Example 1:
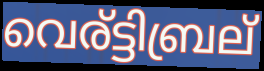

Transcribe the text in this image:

വെര്ട്ടിബ്രല്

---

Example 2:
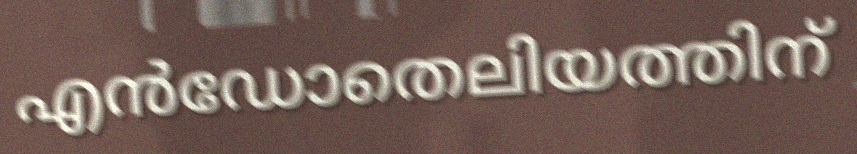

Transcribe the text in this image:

എൻഡോതെലിയത്തിന്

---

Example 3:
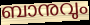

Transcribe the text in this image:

ബാനുവും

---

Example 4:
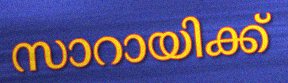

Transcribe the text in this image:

സാറായിക്ക്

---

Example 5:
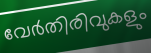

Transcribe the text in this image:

വേർതിരിവുകളും